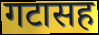
गटासह